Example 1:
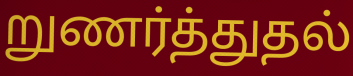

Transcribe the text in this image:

றுணர்த்துதல்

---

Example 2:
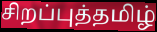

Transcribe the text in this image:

சிறப்புத்தமிழ்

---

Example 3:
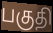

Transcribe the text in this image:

பகுதி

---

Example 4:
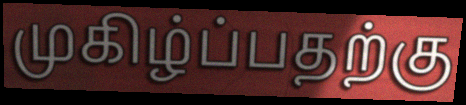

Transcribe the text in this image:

முகிழ்ப்பதற்கு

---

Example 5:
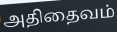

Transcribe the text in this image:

அதிதைவம்